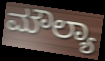
ಮೌಲ್ಯಾ